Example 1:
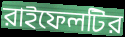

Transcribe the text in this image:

রাইফেলটির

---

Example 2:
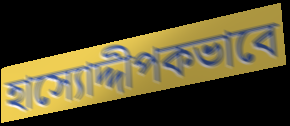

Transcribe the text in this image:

হাস্যোদ্দীপকভাবে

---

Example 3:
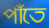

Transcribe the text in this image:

পাঁতে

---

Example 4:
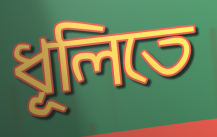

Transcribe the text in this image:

ধূলিতে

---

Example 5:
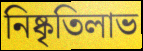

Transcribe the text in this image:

নিষ্কৃতিলাভ